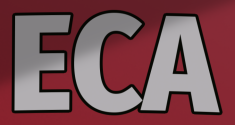
ECA